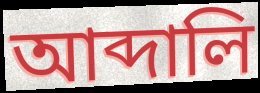
আব্দালি